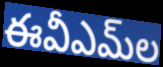
ఈవీఎమ్‌ల